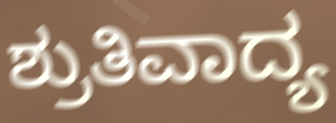
ಶ್ರುತಿವಾದ್ಯ